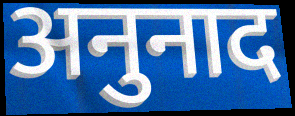
अनुनाद